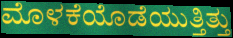
ಮೊಳಕೆಯೊಡೆಯುತ್ತಿತ್ತು